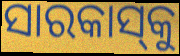
ସାରକାସ୍‌କୁ